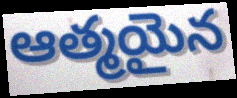
ఆత్మయైన